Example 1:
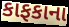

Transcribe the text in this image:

કાફકાના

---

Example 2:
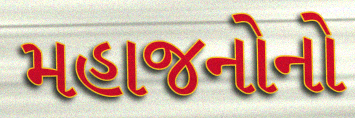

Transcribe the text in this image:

મહાજનોનો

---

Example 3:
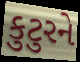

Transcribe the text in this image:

કુટુરને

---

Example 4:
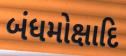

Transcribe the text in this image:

બંધમોક્ષાદિ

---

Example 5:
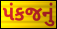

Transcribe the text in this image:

પંકજનું